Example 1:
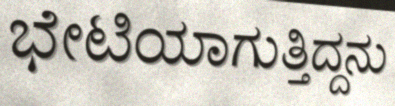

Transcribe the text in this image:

ಭೇಟಿಯಾಗುತ್ತಿದ್ದನು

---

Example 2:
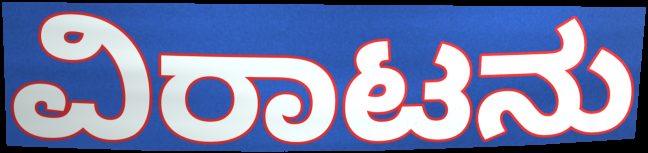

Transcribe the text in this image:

ವಿರಾಟನು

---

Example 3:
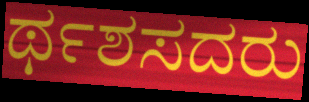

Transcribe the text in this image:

ರ್ಥಶಸದರು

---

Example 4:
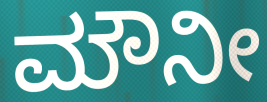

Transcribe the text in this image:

ಮೌನೀ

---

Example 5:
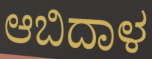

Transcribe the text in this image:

ಆಬಿದಾಳ